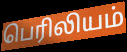
பெரிலியம்